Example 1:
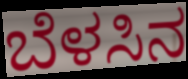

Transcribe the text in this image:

ಬೆಳಸಿನ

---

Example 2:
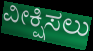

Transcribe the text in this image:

ವೀಕ್ಷಿಸಲು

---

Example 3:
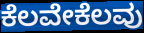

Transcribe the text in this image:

ಕೆಲವೇಕೆಲವು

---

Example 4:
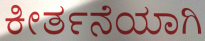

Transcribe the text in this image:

ಕೀರ್ತನೆಯಾಗಿ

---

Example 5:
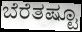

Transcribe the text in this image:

ಬೆರೆತಷ್ಟೂ